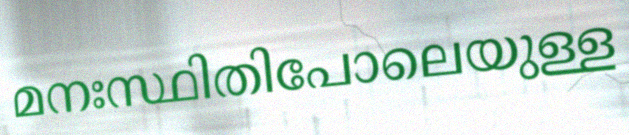
മനഃസ്ഥിതിപോലെയുള്ള